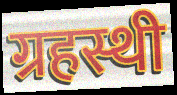
ग्रहस्थी